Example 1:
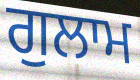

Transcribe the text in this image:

ਗੁਲਾਮ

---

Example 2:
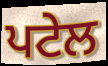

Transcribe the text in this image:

ਪਟੇਲ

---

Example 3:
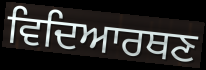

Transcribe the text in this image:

ਵਿਦਿਆਰਥਣ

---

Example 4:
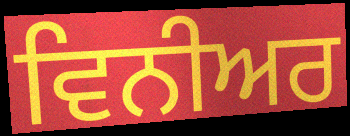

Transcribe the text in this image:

ਵਿਨੀਅਰ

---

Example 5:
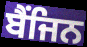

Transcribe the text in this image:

ਬੈਂਜਿਨ